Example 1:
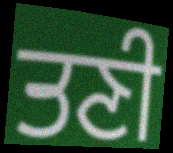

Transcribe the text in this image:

ਤਣੀ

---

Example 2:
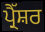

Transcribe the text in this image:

ਪ੍ਰੈੱਸ਼ਰ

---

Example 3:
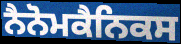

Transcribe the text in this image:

ਨੈਨੋਮਕੈਨਿਕਸ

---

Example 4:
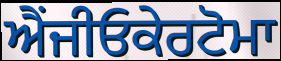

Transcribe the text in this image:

ਐਂਜੀਓਕੇਰਟੋਮਾ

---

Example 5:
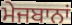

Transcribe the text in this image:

ਮੇਜਬਾਨਾਂ